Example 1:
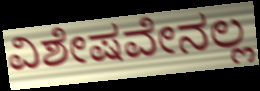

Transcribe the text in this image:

ವಿಶೇಷವೇನಲ್ಲ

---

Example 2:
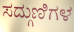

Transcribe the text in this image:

ಸದ್ಗುಣಿಗಳ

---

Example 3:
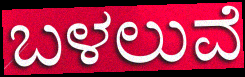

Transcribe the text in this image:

ಬಳಲುವೆ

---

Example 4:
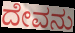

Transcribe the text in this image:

ದೇವನು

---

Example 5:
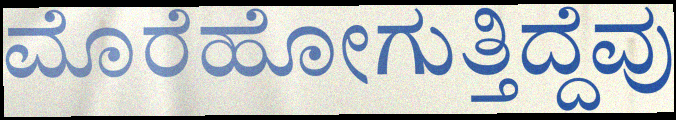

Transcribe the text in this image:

ಮೊರೆಹೋಗುತ್ತಿದ್ದೆವು